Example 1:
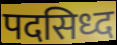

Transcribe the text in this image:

पदसिध्द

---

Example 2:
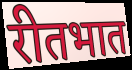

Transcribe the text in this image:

रीतभात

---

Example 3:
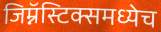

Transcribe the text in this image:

जिम्नॅस्टिक्समध्येच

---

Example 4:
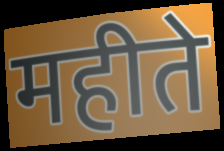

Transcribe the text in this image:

महीते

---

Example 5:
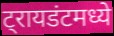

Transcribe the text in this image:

ट्रायडंटमध्ये